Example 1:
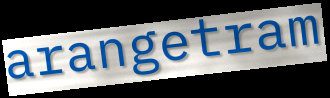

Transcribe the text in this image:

arangetram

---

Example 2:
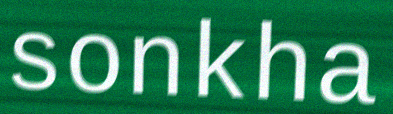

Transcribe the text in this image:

sonkha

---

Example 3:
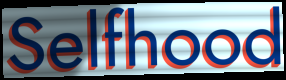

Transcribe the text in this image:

Selfhood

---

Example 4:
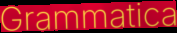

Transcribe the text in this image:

Grammatica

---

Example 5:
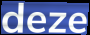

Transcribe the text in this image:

deze